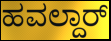
ಹವಲ್ದಾರ್